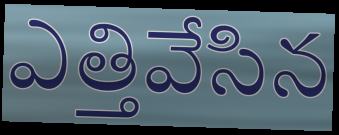
ఎత్తివేసిన